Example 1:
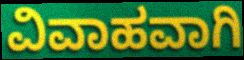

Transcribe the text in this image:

ವಿವಾಹವಾಗಿ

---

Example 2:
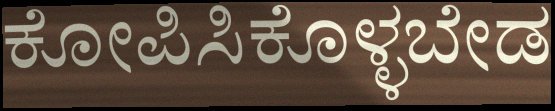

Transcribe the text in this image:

ಕೋಪಿಸಿಕೊಳ್ಳಬೇಡ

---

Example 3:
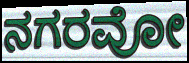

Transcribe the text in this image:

ನಗರವೋ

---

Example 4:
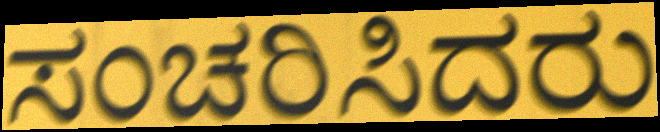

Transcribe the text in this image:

ಸಂಚರಿಸಿದರು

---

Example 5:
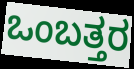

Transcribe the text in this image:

ಒಂಬತ್ತರ